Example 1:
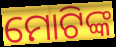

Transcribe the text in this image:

ମୋଟିଙ୍କ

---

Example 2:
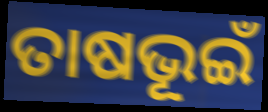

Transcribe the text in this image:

ତାଷଭୂଇଁ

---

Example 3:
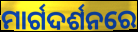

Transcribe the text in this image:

ମାର୍ଗଦର୍ଶନରେ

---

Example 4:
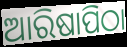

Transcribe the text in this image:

ଆରିଷାପିଠା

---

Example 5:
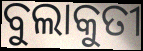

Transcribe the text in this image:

ବୁଲାକୁତୀ